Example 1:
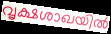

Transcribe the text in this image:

വൃക്ഷശാഖയിൽ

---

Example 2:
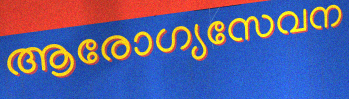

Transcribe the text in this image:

ആരോഗ്യസേവന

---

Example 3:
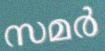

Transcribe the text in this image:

സമർ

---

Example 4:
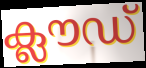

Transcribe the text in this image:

ക്ലൗഡ്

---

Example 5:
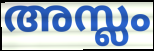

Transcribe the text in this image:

അസ്ലം